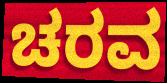
ಚರವ